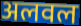
अलवल